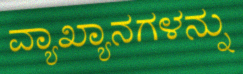
ವ್ಯಾಖ್ಯಾನಗಳನ್ನು